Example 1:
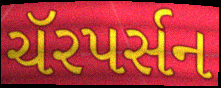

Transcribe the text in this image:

ચૅરપર્સન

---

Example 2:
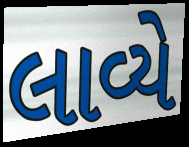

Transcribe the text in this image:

લાવ્યે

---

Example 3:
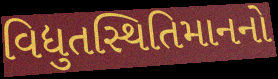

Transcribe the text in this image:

વિદ્યુતસ્થિતિમાનનો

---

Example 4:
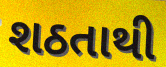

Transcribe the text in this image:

શઠતાથી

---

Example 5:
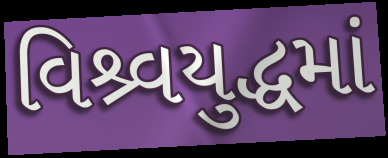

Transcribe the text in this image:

વિશ્ર્વયુદ્ધમાં